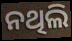
ନଥିଲି